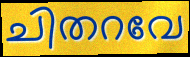
ചിതറവേ